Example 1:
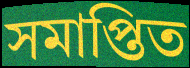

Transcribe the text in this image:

সমাপ্তিত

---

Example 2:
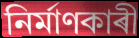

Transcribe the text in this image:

নিৰ্মাণকাৰী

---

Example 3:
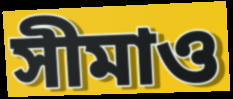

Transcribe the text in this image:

সীমাও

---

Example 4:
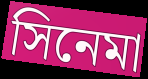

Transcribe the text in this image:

সিনেমা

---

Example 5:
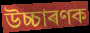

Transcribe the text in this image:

উচ্চাৰণক